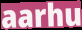
aarhu